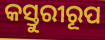
କସ୍ତୁରୀରୂପ